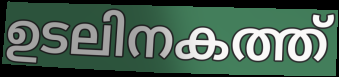
ഉടലിനകത്ത്